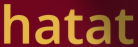
hatat